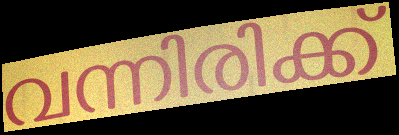
വന്നിരിക്ക്